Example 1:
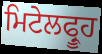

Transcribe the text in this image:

ਮਿਟੇਲਫ੍ਰੂਹ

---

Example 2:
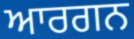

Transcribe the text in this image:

ਆਰਗਨ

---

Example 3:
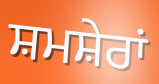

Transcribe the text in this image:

ਸ਼ਮਸ਼ੇਰਾਂ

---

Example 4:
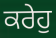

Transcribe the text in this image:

ਕਰੇਹੁ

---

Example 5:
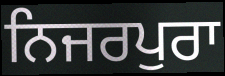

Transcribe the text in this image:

ਨਿਜਰਪੁਰਾ